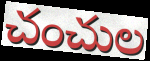
చంచుల